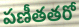
పణీతతరో